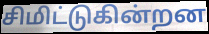
சிமிட்டுகின்றன